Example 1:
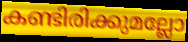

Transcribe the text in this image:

കണ്ടിരിക്കുമല്ലോ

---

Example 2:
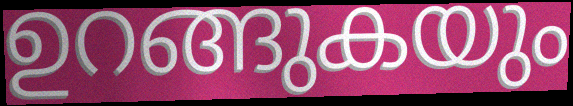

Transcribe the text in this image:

ഉറങ്ങുകയും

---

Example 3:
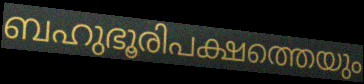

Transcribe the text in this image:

ബഹുഭൂരിപക്ഷത്തെയും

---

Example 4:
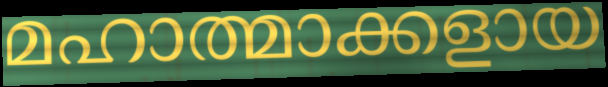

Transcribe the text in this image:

മഹാത്മാക്കളായ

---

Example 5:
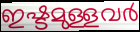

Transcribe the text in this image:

ഇഷ്ടമുള്ളവർ